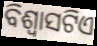
ବିଶ୍ଵାସଟିଏ